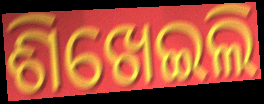
ଶିଖେଇଲି